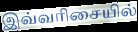
இவ்வரிசையில்